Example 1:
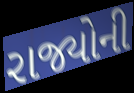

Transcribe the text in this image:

રાજ્યોની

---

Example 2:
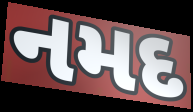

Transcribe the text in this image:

નમદ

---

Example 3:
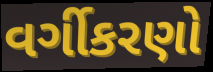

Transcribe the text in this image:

વર્ગીકરણો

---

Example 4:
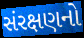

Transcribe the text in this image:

સંરક્ષણનો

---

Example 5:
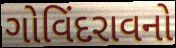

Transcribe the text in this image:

ગોવિંદરાવનો